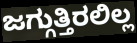
ಜಗ್ಗುತ್ತಿರಲಿಲ್ಲ